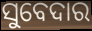
ସୁବେଦାର